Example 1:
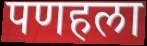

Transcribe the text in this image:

पणहला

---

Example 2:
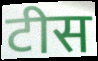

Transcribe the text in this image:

टीस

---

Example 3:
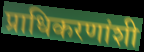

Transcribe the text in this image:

प्राधिकरणांशी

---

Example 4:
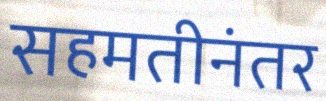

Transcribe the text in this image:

सहमतीनंतर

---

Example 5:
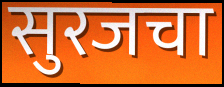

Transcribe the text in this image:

सुरजचा